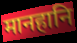
मानहानि